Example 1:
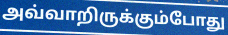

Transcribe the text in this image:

அவ்வாறிருக்கும்போது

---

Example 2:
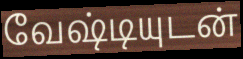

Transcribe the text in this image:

வேஷ்டியுடன்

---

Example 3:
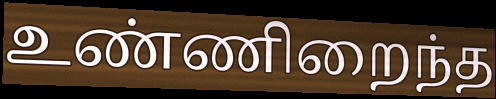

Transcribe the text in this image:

உண்ணிறைந்த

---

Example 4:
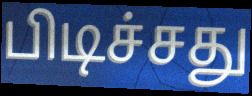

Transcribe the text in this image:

பிடிச்சது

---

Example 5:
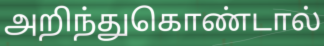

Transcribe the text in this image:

அறிந்துகொண்டால்